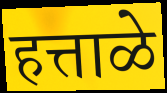
हत्ताळे